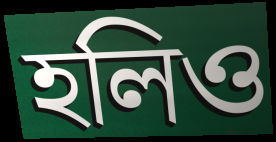
হলিও